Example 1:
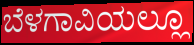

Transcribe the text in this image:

ಬೆಳಗಾವಿಯಲ್ಲೂ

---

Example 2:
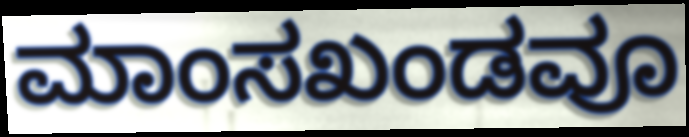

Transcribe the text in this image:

ಮಾಂಸಖಂಡವೂ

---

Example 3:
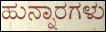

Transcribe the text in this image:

ಹುನ್ನಾರಗಳು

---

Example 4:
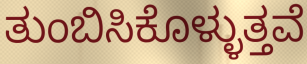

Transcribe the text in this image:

ತುಂಬಿಸಿಕೊಳ್ಳುತ್ತವೆ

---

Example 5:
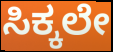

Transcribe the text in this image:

ಸಿಕ್ಕಲೇ